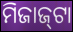
ମିଜାଜ୍‌ଟା